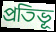
প্রতিভূ